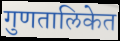
गुणतालिकेत